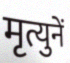
मृत्युनें